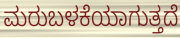
ಮರುಬಳಕೆಯಾಗುತ್ತದೆ